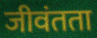
जीवंतता